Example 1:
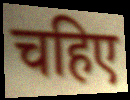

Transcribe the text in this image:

चहिए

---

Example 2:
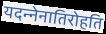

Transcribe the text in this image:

यदन्नेनातिरोहति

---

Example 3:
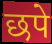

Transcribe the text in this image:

छपे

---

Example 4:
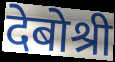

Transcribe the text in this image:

देबोश्री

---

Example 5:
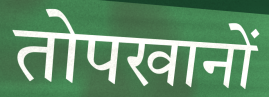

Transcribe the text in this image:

तोपखानों